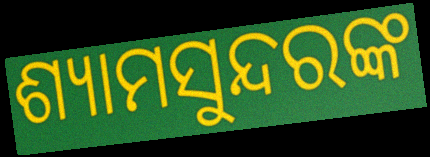
ଶ୍ୟାମସୁନ୍ଦରଙ୍କ